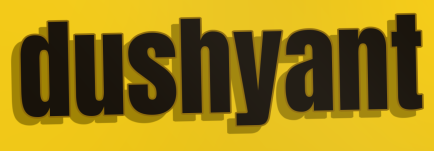
dushyant